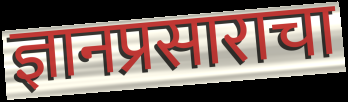
ज्ञानप्रसाराचा